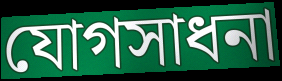
যোগসাধনা